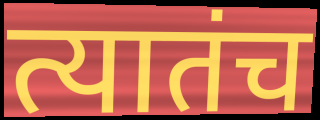
त्यातंच